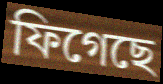
ফিগেছে